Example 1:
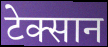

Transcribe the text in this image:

टेक्सान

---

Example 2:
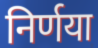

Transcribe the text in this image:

निर्णया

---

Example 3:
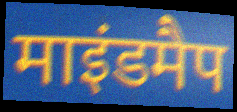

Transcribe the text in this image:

माइंडमैप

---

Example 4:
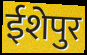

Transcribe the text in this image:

ईशेपुर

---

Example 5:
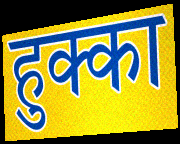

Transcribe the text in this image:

हुक्का